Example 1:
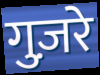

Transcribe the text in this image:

गुज़रे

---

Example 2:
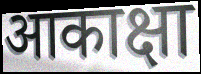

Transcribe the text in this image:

आकाक्षा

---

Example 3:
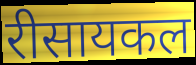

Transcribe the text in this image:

रीसायकल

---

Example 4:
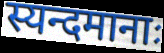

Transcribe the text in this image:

स्यन्दमानाः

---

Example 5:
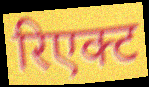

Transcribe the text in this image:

रिएक्ट